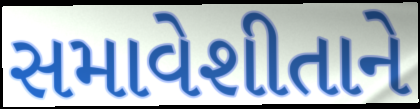
સમાવેશીતાને